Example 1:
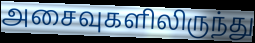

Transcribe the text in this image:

அசைவுகளிலிருந்து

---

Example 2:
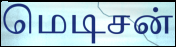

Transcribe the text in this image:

மெடிசன்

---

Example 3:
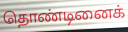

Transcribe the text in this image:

தொண்டினைக்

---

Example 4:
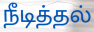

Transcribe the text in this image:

நீடித்தல்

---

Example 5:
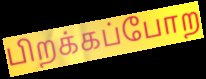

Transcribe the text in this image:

பிறக்கப்போற